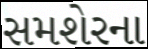
સમશેરના